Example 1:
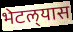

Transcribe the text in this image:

भेटल्यास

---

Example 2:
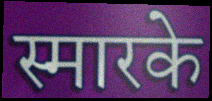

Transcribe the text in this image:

स्मारके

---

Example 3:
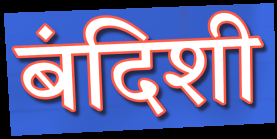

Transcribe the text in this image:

बंदिशी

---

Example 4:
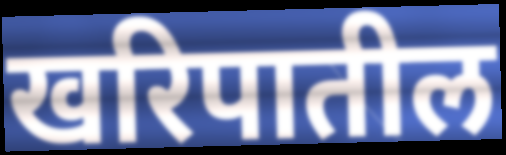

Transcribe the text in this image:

खरिपातील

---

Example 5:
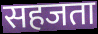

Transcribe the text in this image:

सहजता